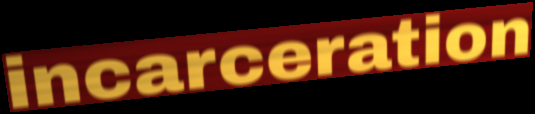
incarceration